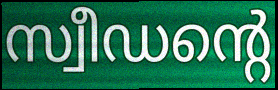
സ്വീഡന്റെ